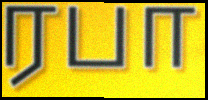
ரபா